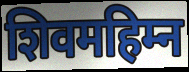
शिवमहिम्न